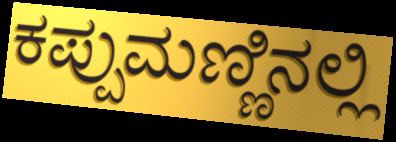
ಕಪ್ಪುಮಣ್ಣಿನಲ್ಲಿ